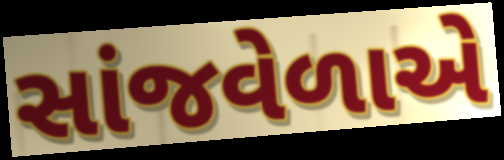
સાંજવેળાએ